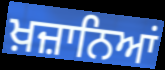
ਖ਼ਜ਼ਾਨਿਆਂ